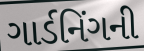
ગાર્ડનિંગની